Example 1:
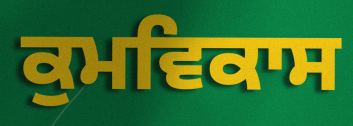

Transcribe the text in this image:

ਕੁਮਵਿਕਾਸ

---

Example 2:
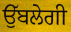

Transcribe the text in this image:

ਉੱਬਲੇਗੀ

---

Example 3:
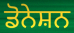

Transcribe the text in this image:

ਡੋਨੇਸ਼ਨ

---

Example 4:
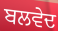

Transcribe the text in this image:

ਬਲਵੇਦ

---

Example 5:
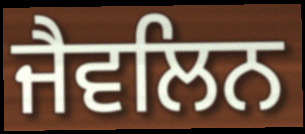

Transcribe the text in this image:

ਜੈਵਲਿਨ